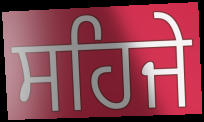
ਸਹਿਜੇ